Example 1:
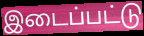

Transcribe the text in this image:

இடைப்பட்டு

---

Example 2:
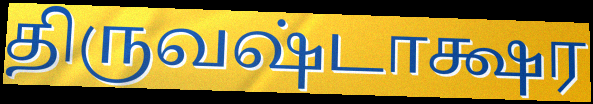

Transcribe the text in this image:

திருவஷ்டாக்ஷர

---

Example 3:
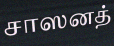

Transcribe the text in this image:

சாஸனத்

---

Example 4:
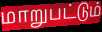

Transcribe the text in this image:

மாறுபட்டும்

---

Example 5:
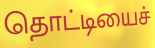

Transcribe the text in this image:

தொட்டியைச்